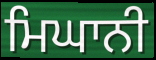
ਮਿਘਾਨੀ